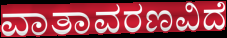
ವಾತಾವರಣವಿದೆ